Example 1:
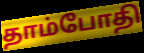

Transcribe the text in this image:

தாம்போதி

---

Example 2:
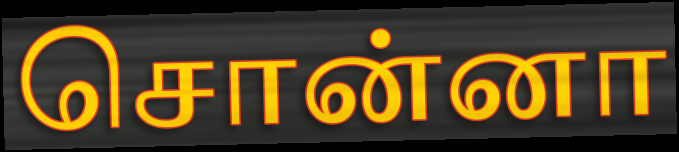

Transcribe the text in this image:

சொன்னா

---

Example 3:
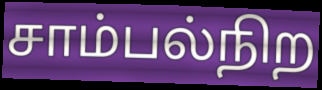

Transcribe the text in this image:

சாம்பல்நிற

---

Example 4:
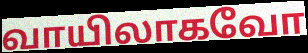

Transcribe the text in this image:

வாயிலாகவோ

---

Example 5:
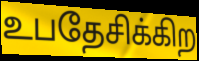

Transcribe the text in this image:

உபதேசிக்கிற